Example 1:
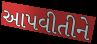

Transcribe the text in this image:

આપવીતીને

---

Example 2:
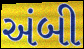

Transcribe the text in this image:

અંબી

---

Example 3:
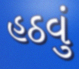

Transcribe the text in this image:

હઠવું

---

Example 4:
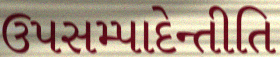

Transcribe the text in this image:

ઉપસમ્પાદેન્તીતિ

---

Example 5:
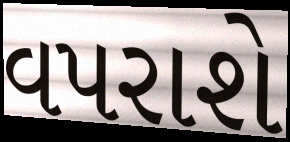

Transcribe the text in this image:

વપરાશે